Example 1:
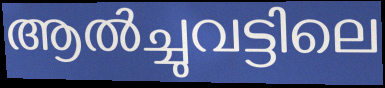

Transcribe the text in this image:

ആൽച്ചുവട്ടിലെ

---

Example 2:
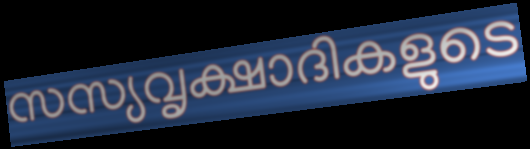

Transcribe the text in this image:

സസ്യവൃക്ഷാദികളുടെ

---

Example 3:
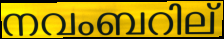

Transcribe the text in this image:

നവംബറില്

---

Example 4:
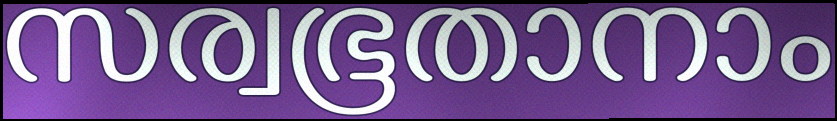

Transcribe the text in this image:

സര്വഭൂതാനാം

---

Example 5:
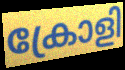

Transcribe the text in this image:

ക്രോളി